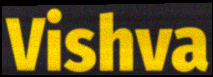
Vishva